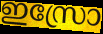
ഇസ്രോ